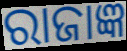
ରାଜାଜ୍ଞ